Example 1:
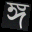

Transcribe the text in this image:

ঙ্গ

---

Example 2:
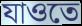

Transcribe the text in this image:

যাওতে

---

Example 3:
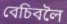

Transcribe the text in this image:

বেচিবলৈ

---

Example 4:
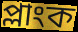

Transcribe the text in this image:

প্লাংক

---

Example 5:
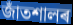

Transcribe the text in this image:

জাঁতশালৰ